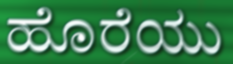
ಹೊರೆಯು